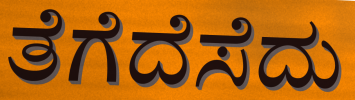
ತೆಗೆದೆಸೆದು